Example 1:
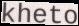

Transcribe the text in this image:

kheto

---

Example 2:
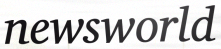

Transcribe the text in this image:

newsworld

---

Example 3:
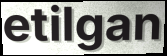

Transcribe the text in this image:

etilgan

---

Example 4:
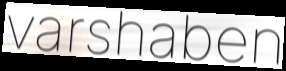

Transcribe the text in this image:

varshaben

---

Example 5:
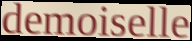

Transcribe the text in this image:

demoiselle